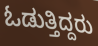
ಓಡುತ್ತಿದ್ದರು